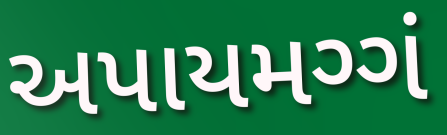
અપાયમગ્ગં